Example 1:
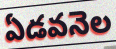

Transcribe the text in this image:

ఏడవనెల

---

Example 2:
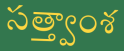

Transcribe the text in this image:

సత్త్వాంశ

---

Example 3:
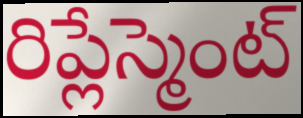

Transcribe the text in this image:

రిప్లేస్మెంట్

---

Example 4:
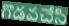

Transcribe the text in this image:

గొడవచేసి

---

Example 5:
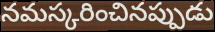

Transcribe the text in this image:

నమస్కరించినప్పుడు